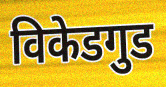
विकेडगुड